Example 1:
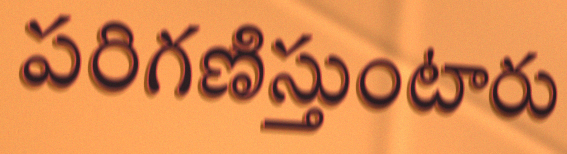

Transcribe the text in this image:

పరిగణిస్తుంటారు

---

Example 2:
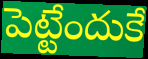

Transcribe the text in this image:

పెట్టేందుకే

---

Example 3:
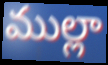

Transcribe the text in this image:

ముల్లా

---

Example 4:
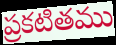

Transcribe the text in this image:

ప్రకటితము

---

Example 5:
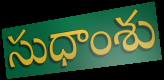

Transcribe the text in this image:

సుధాంశు